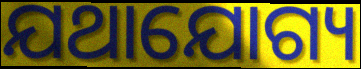
ଯଥାଯୋଗ୍ୟ